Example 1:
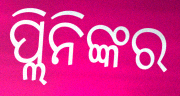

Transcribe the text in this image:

ପ୍ଲିନିଙ୍କର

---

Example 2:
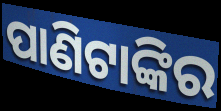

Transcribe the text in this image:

ପାଣିଟାଙ୍କିର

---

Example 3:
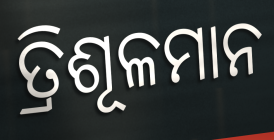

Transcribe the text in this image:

ତ୍ରିଶୂଳମାନ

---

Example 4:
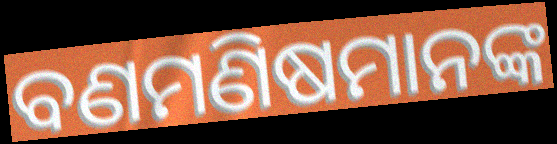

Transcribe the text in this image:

ବଣମଣିଷମାନଙ୍କ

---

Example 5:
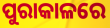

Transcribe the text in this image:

ପୁରାକାଳରେ